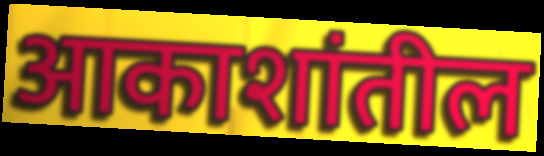
आकाशांतील